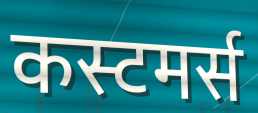
कस्टमर्स